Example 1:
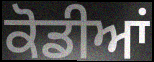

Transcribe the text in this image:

ਕੋਡੀਆਂ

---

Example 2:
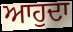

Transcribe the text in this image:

ਆਹੁਦਾ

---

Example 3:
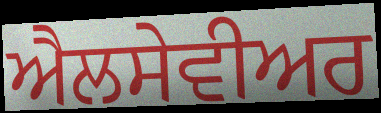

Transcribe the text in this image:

ਐਲਸੇਵੀਅਰ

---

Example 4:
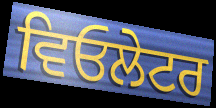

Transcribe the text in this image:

ਵਿਓਲੇਟਰ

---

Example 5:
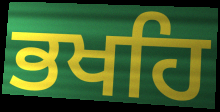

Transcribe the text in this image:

ਭਖਹਿ